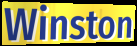
Winston